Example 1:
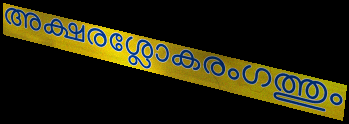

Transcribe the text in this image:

അക്ഷരശ്ലോകരംഗത്തും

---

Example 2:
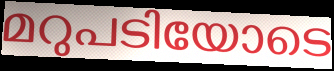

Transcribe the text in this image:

മറുപടിയോടെ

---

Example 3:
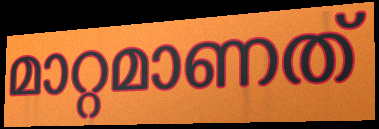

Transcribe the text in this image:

മാറ്റമാണത്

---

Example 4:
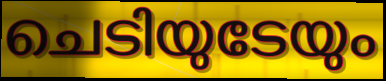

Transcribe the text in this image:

ചെടിയുടേയും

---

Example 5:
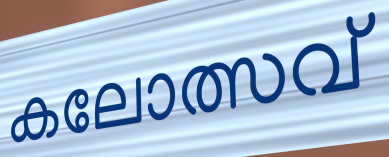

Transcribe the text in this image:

കലോത്സവ്